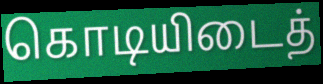
கொடியிடைத்